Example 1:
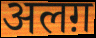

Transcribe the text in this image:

अलग़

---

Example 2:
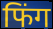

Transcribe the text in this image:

फिंग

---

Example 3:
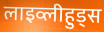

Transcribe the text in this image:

लाइव्लीहुड्स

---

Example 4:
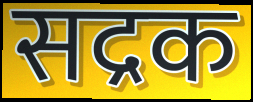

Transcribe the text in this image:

सद्रक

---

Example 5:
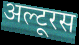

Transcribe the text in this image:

अल्टूरस